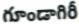
గూండాగిరీ